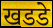
खडडे